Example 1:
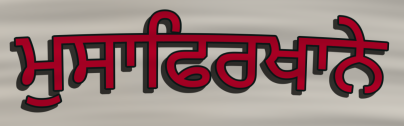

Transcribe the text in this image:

ਮੁਸਾਫਿਰਖਾਨੇ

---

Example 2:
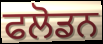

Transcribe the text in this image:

ਫਲੋਡਨ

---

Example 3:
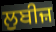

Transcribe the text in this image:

ਲੁਬੀਜ਼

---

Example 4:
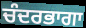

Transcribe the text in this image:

ਚੰਦਰਭਾਗਾ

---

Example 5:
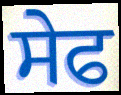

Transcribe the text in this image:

ਸੇਫ